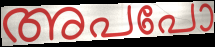
അപപോ